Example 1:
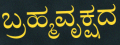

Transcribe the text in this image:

ಬ್ರಹ್ಮವೃಕ್ಷದ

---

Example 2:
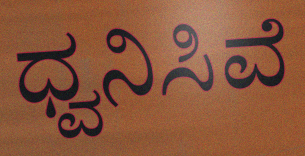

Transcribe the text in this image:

ಧ್ವನಿಸಿವೆ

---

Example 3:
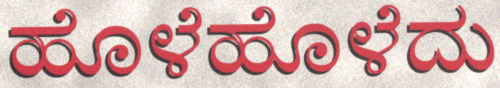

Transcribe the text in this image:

ಹೊಳೆಹೊಳೆದು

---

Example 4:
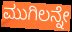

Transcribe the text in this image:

ಮುಗಿಲನ್ನೇ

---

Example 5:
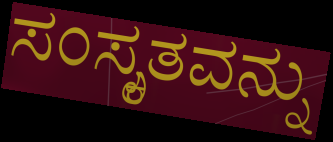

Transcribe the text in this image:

ಸಂಸ್ಕೃತವನ್ನು